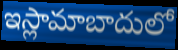
ఇస్లామాబాదులో